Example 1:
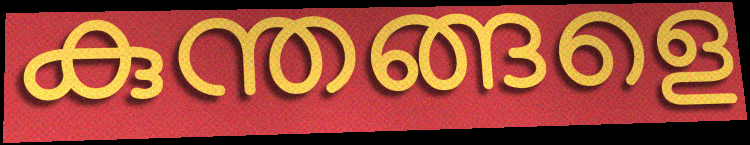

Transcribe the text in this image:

കുന്തങ്ങളെ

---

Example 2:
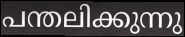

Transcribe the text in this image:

പന്തലിക്കുന്നു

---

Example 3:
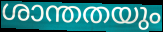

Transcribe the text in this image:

ശാന്തതയും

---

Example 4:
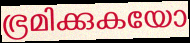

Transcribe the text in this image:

ഭ്രമിക്കുകയോ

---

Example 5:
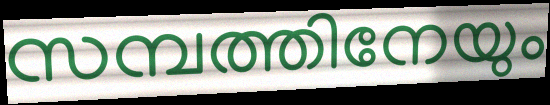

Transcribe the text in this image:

സമ്പത്തിനേയും